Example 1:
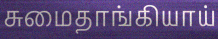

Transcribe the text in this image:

சுமைதாங்கியாய்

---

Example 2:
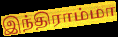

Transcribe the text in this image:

இந்திராம்மா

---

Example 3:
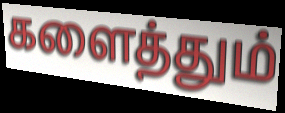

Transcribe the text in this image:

களைத்தும்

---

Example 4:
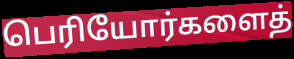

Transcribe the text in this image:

பெரியோர்களைத்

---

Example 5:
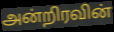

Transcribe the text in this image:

அன்றிரவின்